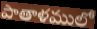
పాతాళములో